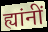
ह्यांनीं